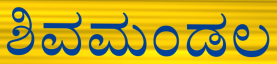
ಶಿವಮಂಡಲ